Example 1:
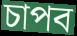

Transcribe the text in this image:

চাপব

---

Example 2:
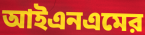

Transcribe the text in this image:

আইএনএমের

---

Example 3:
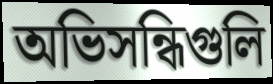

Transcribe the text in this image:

অভিসন্ধিগুলি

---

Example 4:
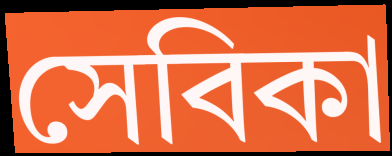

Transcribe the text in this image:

সেবিকা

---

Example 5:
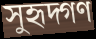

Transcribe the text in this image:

সুহৃদ্গণ